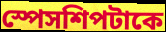
স্পেসশিপটাকে